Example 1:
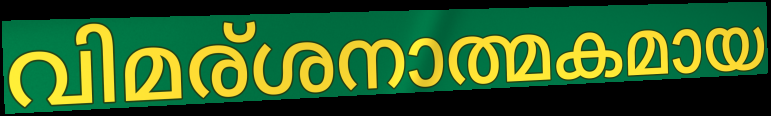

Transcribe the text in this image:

വിമര്ശനാത്മകമായ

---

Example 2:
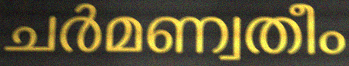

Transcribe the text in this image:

ചർമണ്വതീം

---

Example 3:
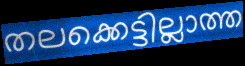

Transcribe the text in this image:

തലക്കെട്ടില്ലാത്ത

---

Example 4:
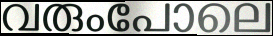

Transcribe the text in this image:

വരുംപോലെ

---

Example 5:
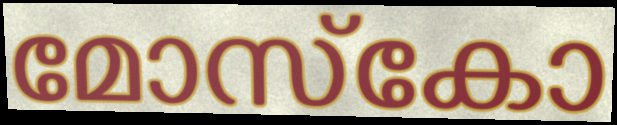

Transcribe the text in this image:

മോസ്‌കോ